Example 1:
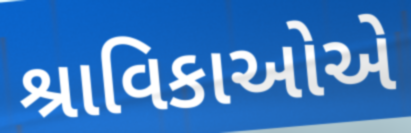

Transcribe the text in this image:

શ્રાવિકાઓએ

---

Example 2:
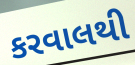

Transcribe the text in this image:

કરવાલથી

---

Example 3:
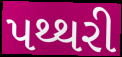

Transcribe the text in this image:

પથ્થરી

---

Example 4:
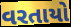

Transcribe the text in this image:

વરતાયો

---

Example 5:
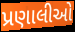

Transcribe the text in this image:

પ્રણાલીઓ